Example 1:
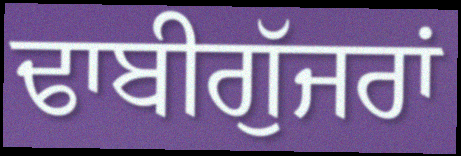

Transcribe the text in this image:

ਢਾਬੀਗੁੱਜਰਾਂ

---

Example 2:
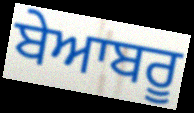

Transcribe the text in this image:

ਬੇਆਬਰੂ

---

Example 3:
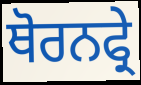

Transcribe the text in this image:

ਥੋਰਨਫ੍ਰੇ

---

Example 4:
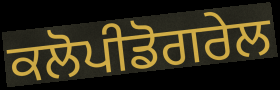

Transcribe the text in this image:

ਕਲੋਪੀਡੋਗਰੇਲ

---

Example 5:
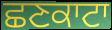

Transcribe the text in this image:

ਛਣਕਾਟਾ